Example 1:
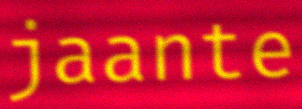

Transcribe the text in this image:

jaante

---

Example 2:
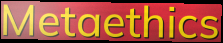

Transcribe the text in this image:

Metaethics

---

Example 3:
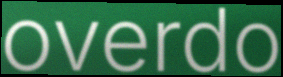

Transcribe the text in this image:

overdo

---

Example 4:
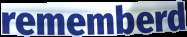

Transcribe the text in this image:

rememberd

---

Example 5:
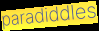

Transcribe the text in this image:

paradiddles